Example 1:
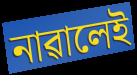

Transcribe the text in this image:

নাৱালেই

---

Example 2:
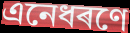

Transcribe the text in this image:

এনেধৰণে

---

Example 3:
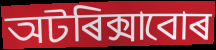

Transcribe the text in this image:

অটৰিক্সাবোৰ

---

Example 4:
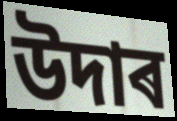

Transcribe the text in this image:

উদাৰ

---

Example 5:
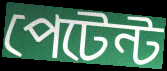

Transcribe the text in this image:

পেটেন্ট